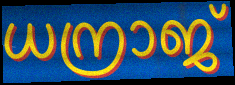
ധന്രാജ്